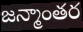
జన్మాంతర